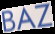
BAZ